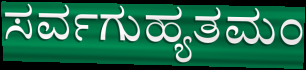
ಸರ್ವಗುಹ್ಯತಮಂ